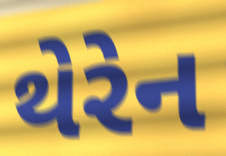
થેરેન